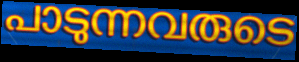
പാടുന്നവരുടെ